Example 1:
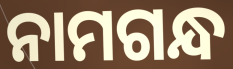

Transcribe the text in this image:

ନାମଗନ୍ଧ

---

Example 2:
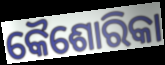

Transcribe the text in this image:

କୈଶୋରିକା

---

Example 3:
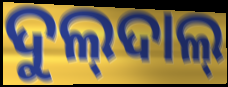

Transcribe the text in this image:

ଦୁଲ୍‍ଦାଲ୍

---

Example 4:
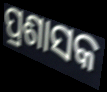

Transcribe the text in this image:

ପ୍ରଶାସକ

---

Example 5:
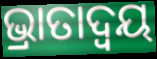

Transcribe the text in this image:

ଭ୍ରାତାଦ୍ୱୟ